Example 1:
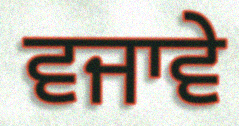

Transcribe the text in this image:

ਵਜਾਵੇ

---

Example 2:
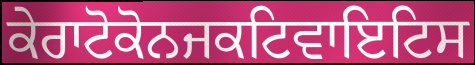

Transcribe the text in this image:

ਕੇਰਾਟੋਕੋਨਜਕਟਿਵਾਇਟਿਸ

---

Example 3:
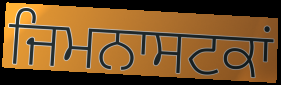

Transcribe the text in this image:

ਜਿਮਨਾਸਟਕਾਂ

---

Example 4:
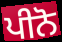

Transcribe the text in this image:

ਪੀਨੋ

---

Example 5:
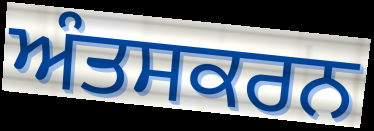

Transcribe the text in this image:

ਅੰਤਸਕਰਨ